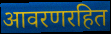
आवरणरहित